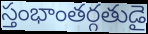
స్తంభాంతర్గతుడై